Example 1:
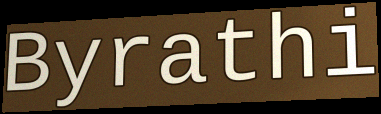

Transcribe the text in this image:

Byrathi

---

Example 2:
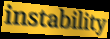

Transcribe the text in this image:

instability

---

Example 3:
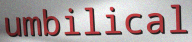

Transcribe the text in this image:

umbilical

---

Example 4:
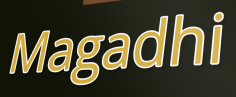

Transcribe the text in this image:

Magadhi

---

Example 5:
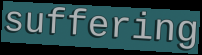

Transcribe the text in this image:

suffering